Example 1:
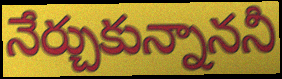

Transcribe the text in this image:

నేర్చుకున్నాననీ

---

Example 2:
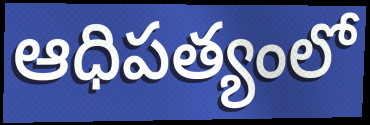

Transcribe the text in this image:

ఆధిపత్యంలో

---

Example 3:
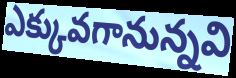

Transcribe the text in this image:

ఎక్కువగానున్నవి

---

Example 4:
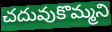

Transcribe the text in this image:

చదువుకొమ్మని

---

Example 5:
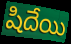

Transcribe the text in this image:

షిదేయి